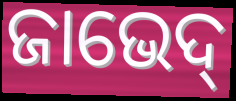
ଜାଭେଦ୍